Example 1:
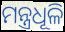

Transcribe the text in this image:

ମନ୍ତ୍ରଧୂଳି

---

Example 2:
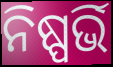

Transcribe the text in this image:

ନିଷ୍ପର୍ଭି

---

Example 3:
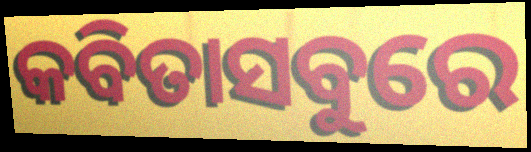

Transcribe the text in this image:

କବିତାସବୁରେ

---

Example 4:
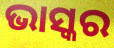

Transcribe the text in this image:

ଭାସ୍କର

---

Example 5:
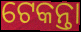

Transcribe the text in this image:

ଟେକନ୍ତା